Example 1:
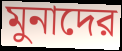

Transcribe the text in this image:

মুনাদের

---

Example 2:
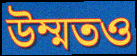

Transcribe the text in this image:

উম্মতও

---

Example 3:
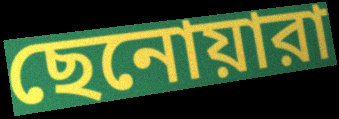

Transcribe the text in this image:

ছেনোয়ারা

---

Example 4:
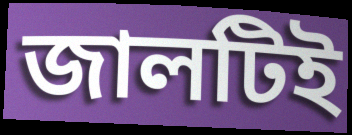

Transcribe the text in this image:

জালটিই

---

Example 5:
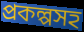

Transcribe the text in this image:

প্রকল্পসহ